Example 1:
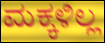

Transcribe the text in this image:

ಮಕ್ಕಳಿಲ್ಲ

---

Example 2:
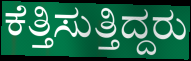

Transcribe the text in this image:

ಕೆತ್ತಿಸುತ್ತಿದ್ದರು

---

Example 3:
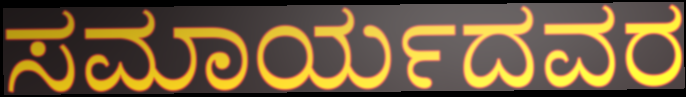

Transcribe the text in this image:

ಸಮಾರ್ಯದವರ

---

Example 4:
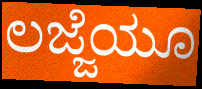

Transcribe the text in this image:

ಲಜ್ಜೆಯೂ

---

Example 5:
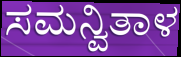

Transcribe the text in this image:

ಸಮನ್ವಿತಾಳ